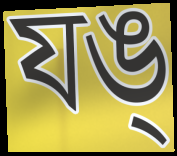
যঙ্